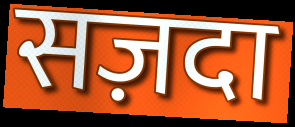
सज़दा